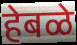
हेबळे